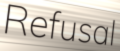
Refusal